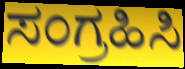
ಸಂಗ್ರಹಿಸಿ